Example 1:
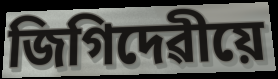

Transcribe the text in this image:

জিগিদেৱীয়ে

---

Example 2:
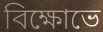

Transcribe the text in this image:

বিক্ষোভে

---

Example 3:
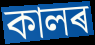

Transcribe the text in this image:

কালৰ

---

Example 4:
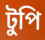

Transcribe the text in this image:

টুপি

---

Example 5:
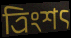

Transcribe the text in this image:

ত্ৰিংশৎ